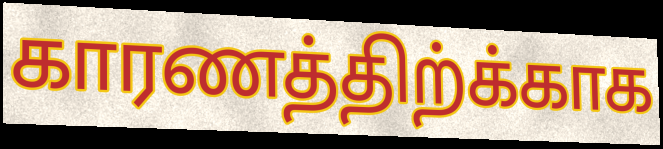
காரணத்திற்க்காக